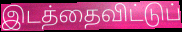
இடத்தைவிட்டுப்